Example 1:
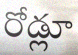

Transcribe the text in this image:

రోడ్లూ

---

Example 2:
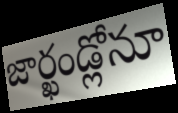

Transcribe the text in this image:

జార్ఖండ్లోనూ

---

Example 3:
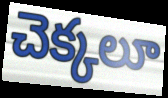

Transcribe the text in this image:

చెక్కలూ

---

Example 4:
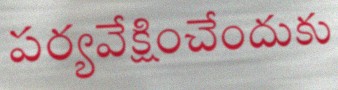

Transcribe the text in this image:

పర్యవేక్షించేందుకు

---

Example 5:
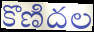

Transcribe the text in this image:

కొణిదల